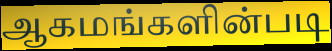
ஆகமங்களின்படி